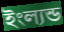
ইংল্যন্ড